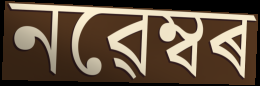
নৱেম্বৰ